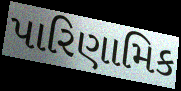
પારિણામિક